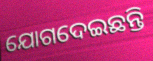
ଯୋଗଦେଇଛନ୍ତି